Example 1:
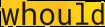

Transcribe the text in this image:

whould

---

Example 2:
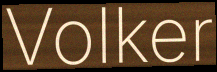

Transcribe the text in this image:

Volker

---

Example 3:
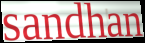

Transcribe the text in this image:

sandhan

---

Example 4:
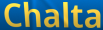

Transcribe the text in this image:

Chalta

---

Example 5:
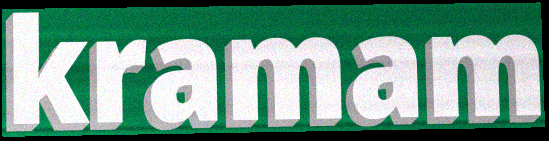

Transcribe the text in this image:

kramam